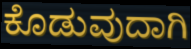
ಕೊಡುವುದಾಗಿ